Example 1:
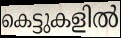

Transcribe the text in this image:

കെട്ടുകളിൽ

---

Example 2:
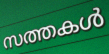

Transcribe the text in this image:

സത്തകൾ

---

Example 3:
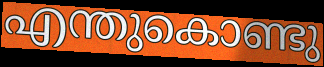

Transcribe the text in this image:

എന്തുകൊണ്ടു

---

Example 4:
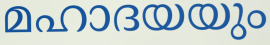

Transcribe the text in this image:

മഹാദയയും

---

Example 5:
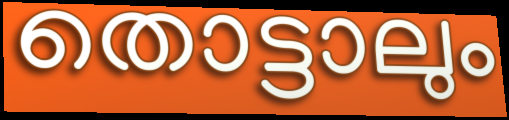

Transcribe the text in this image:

തൊട്ടാലും